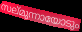
സല്മുന്നായോടും